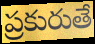
ప్రకురుతే